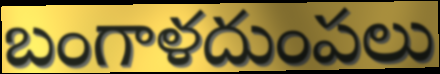
బంగాళదుంపలు